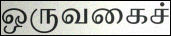
ஒருவகைச்